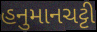
હનુમાનચટ્ટી